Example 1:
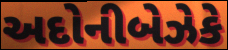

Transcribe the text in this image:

અદોનીબેઝેકે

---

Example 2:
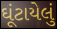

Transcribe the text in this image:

ઘૂંટાયેલું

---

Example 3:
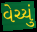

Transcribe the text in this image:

વેચ્યું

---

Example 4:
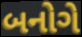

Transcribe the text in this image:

બનોગે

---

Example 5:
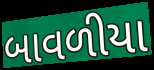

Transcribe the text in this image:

બાવળીયા